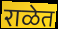
राळेत